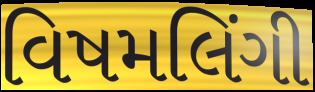
વિષમલિંગી